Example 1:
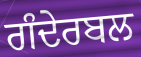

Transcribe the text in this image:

ਗੰਦੇਰਬਲ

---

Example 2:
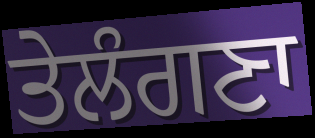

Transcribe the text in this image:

ਤੇਲੰਗਣਾ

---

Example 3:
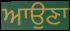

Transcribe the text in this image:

ਆਉਣਾ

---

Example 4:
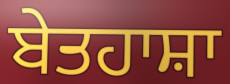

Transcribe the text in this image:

ਬੇਤਹਾਸ਼ਾ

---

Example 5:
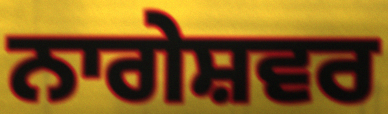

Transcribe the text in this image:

ਨਾਗੇਸ਼ਵਰ